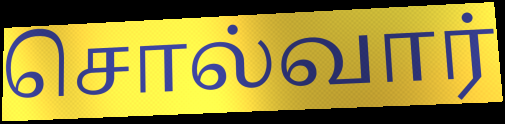
சொல்வார்